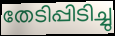
തേടിപ്പിടിച്ചു